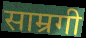
साम्रगी